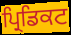
ਪ੍ਰਿਡਿਕਟ